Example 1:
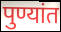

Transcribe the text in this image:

पुण्यांत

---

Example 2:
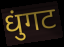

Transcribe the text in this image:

धुंगट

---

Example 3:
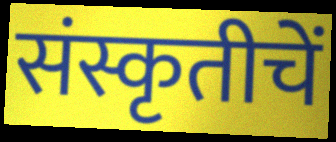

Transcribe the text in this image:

संस्कृतीचें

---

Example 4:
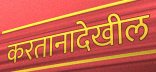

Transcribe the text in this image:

करतानादेखील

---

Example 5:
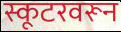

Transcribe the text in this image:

स्कूटरवरून